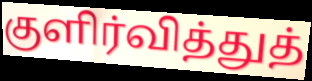
குளிர்வித்துத்